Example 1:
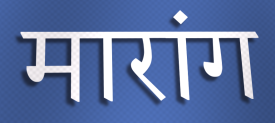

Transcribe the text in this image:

मारांग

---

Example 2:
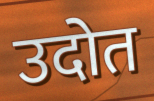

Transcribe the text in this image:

उदोत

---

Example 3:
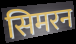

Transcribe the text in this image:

सिमरन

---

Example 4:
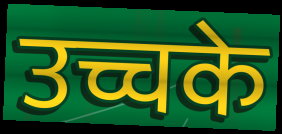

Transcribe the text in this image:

उच्चके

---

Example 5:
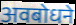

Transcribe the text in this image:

अवबोधने